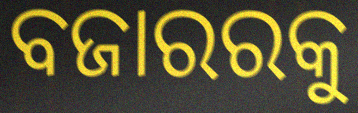
ବଜାରରକୁ